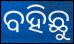
ବହିଛୁ